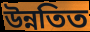
উন্নতিত